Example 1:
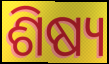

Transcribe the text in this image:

ଶିଷ୍ୟ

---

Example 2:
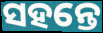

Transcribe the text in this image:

ସହନ୍ତେ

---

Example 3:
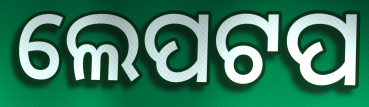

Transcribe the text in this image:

ଲେପଟପ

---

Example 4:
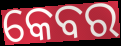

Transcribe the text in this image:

କେବର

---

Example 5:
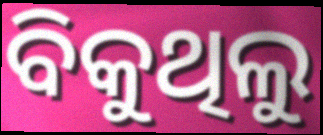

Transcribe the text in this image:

ବିକୁଥିଲୁ